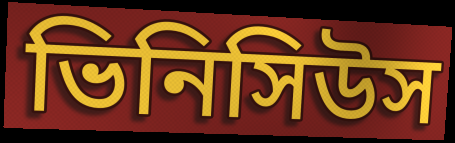
ভিনিসিউস